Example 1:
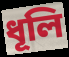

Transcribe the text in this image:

ধূলি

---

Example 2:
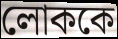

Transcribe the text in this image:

লোককে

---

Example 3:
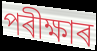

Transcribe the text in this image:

পৰীক্ষাৰ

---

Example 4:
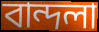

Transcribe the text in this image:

বান্দলা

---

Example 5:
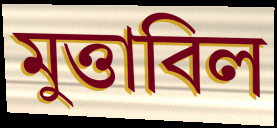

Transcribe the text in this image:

মুত্তাবিল